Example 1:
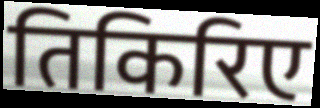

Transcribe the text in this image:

तिकिरिए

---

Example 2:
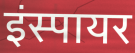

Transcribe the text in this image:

इंस्पायर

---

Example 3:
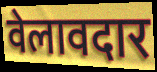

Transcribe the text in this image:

वेलावदार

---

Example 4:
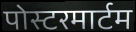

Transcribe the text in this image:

पोस्टरमार्टम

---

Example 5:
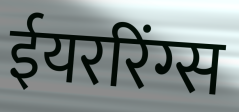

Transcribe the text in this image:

ईयररिंग्स